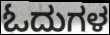
ಓದುಗಳ